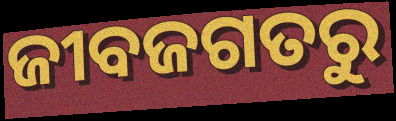
ଜୀବଜଗତରୁ